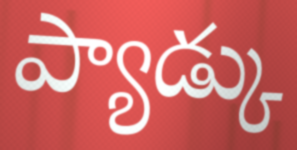
ప్యాడ్కు